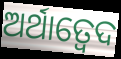
ଅର୍ଥାତ୍ବେଦ